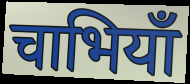
चाभियाँ